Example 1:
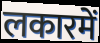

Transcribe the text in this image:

लकारमें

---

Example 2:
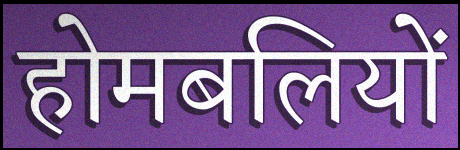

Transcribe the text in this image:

होमबलियों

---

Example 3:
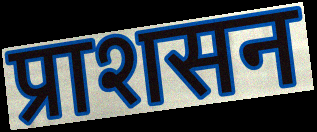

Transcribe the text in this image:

प्राशसन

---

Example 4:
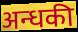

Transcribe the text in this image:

अन्धकी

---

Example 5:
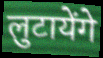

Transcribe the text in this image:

लुटायेंगे